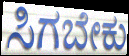
ಸಿಗಬೇಕು